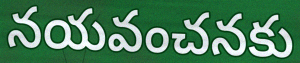
నయవంచనకు